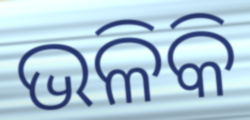
ଭଳିକି